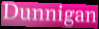
Dunnigan